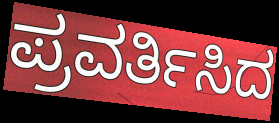
ಪ್ರವರ್ತಿಸಿದ